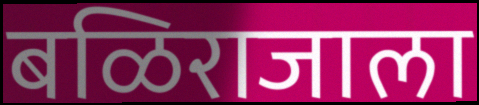
बळिराजाला